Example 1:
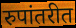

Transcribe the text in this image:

रुपांतरीत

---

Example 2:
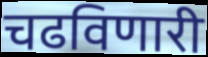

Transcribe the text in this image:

चढविणारी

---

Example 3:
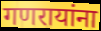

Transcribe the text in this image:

गणरायांना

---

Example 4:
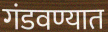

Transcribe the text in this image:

गंडवण्यात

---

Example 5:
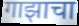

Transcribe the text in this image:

गाझाचा